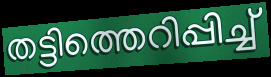
തട്ടിത്തെറിപ്പിച്ച്